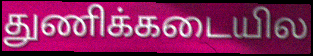
துணிக்கடையில